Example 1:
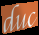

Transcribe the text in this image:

duc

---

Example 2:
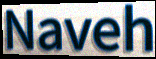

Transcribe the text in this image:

Naveh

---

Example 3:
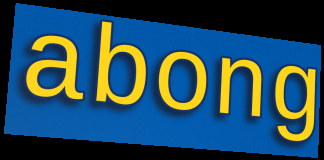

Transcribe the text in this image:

abong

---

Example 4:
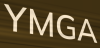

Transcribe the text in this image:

YMGA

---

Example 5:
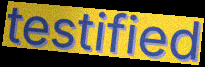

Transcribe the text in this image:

testified